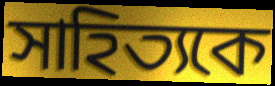
সাহিত্যকে